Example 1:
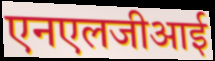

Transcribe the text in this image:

एनएलजीआई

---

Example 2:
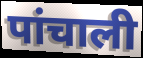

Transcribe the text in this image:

पांचाली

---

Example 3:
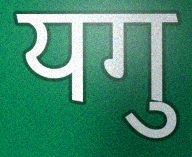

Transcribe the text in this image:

यगु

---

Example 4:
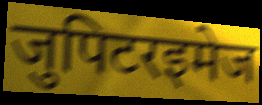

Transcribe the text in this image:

जुपिटरइमेज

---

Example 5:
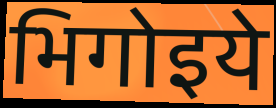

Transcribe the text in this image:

भिगोइये